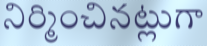
నిర్మించినట్లుగా